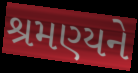
શ્રમણ્યને